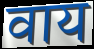
वाय